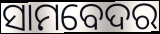
ସାମବେଦର